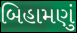
બિહામણું